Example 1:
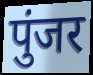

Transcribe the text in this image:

पुंजर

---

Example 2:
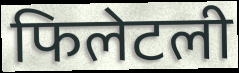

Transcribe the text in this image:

फिलेटली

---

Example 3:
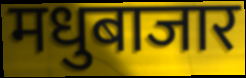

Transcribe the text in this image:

मधुबाजार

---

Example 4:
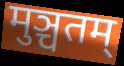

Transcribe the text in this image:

मुञ्चतम्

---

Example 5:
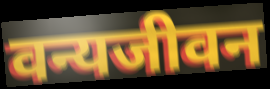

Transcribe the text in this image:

वन्यजीवन